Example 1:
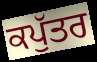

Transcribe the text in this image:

ਕਪੁੱਤਰ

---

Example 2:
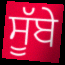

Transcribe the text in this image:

ਸੂੱਬੇ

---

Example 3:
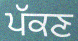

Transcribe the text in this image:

ਪੱਕਣ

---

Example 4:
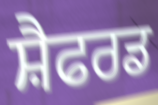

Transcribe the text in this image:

ਸ਼ੈਫਰਡ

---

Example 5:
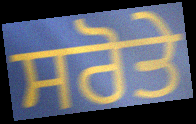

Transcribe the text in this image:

ਸਰੋਤੇ